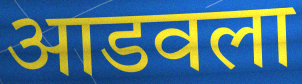
आडवला